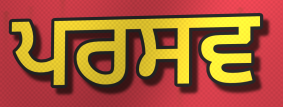
ਪਰਸਵ